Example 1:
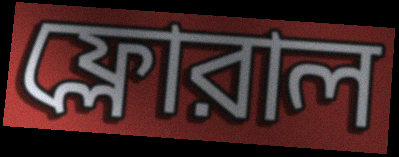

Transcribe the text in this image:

ফ্লোরাল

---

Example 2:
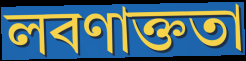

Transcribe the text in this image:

লবণাক্ততা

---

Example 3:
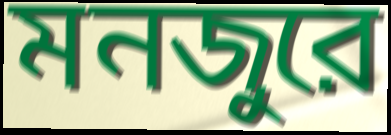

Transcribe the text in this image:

মনজুরে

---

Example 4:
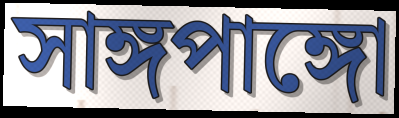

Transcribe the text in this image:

সাঙ্গপাঙ্গো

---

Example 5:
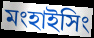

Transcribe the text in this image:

মংহাইসিং